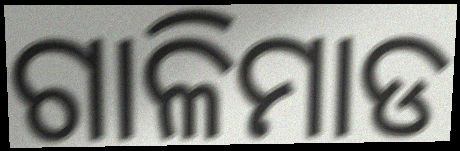
ଗାଳିମାଡ